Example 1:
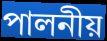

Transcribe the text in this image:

পালনীয়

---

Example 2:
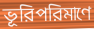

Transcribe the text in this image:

ভূরিপরিমাণে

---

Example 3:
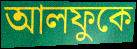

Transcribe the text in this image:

আলফুকে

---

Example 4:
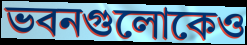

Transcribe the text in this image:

ভবনগুলোকেও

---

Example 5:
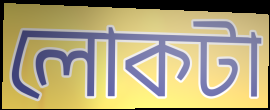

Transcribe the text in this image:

লোকটা